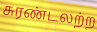
சுரண்டலற்ற